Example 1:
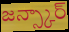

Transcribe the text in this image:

జన్స్కార్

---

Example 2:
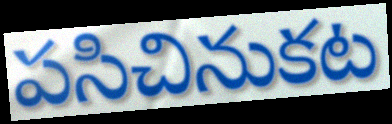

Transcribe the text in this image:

పసిచినుకట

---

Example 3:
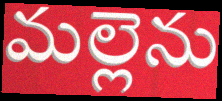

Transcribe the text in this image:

మల్లెను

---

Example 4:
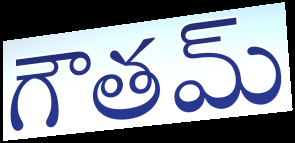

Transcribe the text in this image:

గౌతమ్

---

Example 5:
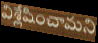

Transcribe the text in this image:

విశ్లేషించామని